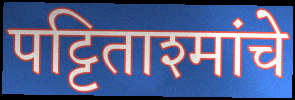
पट्टिताश्मांचे